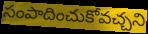
సంపాదించుకోవచ్చని